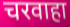
चरवाहा